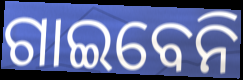
ଗାଇବେନି